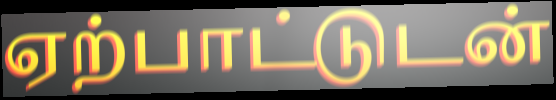
ஏற்பாட்டுடன்